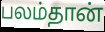
பலம்தான்